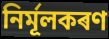
নিৰ্মূলকৰণ